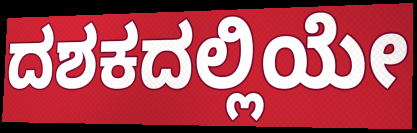
ದಶಕದಲ್ಲಿಯೇ